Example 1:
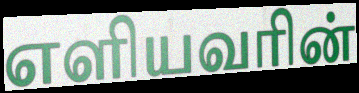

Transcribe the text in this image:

எளியவரின்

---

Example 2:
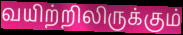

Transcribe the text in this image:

வயிற்றிலிருக்கும்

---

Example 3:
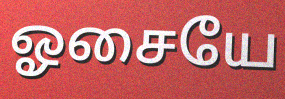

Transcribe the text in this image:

ஓசையே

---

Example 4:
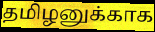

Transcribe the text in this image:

தமிழனுக்காக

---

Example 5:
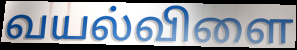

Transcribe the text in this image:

வயல்விளை